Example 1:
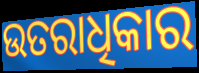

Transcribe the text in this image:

ଉତରାଧିକାର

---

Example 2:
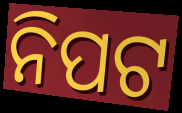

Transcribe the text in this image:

ନିପଟ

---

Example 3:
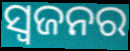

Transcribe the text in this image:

ସ୍ୱଜନର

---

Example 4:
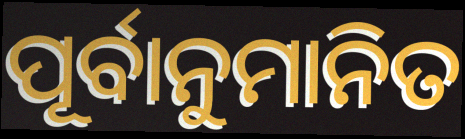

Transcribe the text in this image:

ପୂର୍ବାନୁମାନିତ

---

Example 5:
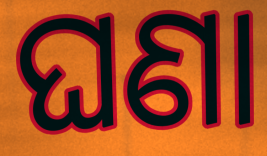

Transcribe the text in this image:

ଘଣା